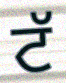
ਟੱ